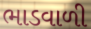
ભાડવાળી